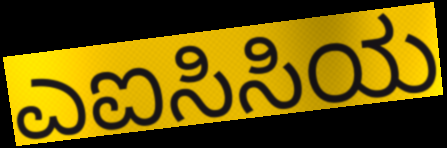
ಎಐಸಿಸಿಯ